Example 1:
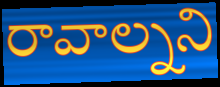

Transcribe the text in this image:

రావాల్నని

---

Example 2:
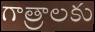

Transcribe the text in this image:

గాత్రాలకు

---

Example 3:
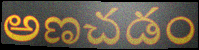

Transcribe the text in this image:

అణచడం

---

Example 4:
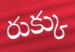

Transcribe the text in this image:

రుక్కు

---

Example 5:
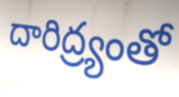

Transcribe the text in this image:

దారిద్ర్యంతో